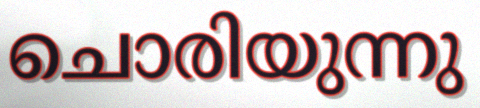
ചൊരിയുന്നു